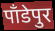
पाँडेपुर